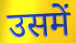
उसमें